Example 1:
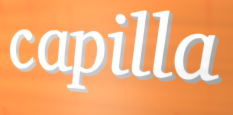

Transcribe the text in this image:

capilla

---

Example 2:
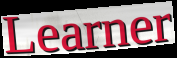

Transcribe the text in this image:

Learner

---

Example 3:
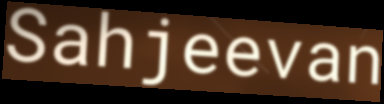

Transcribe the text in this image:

Sahjeevan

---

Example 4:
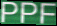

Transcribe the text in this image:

PPF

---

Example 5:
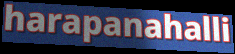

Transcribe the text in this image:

harapanahalli